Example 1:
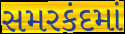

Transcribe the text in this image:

સમરકંદમાં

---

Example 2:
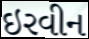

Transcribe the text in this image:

ઇરવીન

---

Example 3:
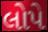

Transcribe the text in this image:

લોપે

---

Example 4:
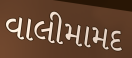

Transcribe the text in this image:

વાલીમામદ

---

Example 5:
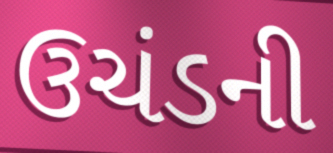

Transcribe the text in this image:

ઉચંડની